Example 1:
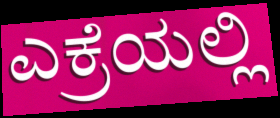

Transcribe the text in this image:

ಎಕ್ರೆಯಲ್ಲಿ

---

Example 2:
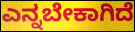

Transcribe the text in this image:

ಎನ್ನಬೇಕಾಗಿದೆ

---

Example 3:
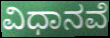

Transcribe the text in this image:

ವಿಧಾನವೆ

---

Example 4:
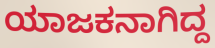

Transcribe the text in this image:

ಯಾಜಕನಾಗಿದ್ದ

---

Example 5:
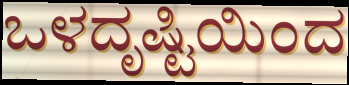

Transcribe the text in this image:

ಒಳದೃಷ್ಟಿಯಿಂದ